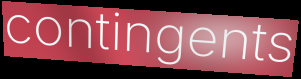
contingents